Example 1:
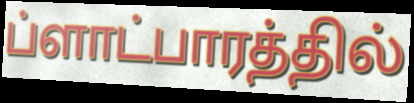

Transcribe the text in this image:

ப்ளாட்பாரத்தில்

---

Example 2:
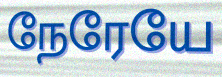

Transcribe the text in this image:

நேரேயே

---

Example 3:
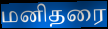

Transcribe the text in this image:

மனிதரை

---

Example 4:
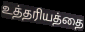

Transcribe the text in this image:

உத்தரியத்தை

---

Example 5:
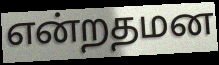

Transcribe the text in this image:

என்றதமன